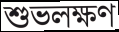
শুভলক্ষণ